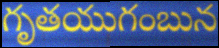
గృతయుగంబున